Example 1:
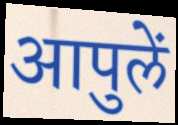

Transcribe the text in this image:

आपुलें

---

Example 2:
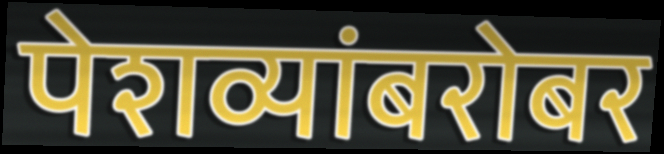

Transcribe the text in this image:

पेशव्यांबरोबर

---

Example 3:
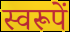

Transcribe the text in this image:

स्वरूपें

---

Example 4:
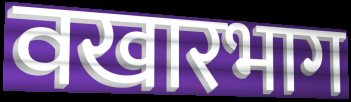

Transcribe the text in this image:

वखारभाग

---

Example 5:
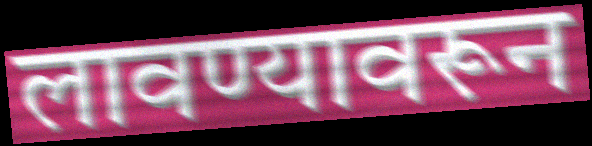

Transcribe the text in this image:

लावण्यावरून